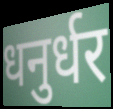
धनुर्धर